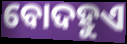
ବୋଦହୁଏ